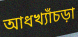
আধখ্যাঁচড়া